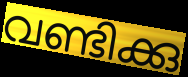
വണ്ടിക്കു